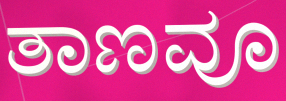
ತಾಣವೂ